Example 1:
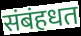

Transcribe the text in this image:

संबंहधत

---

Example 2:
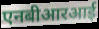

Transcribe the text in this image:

एनबीआरआई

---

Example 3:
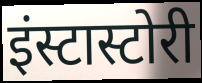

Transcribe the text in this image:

इंस्टास्टोरी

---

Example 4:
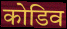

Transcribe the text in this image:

कोडिव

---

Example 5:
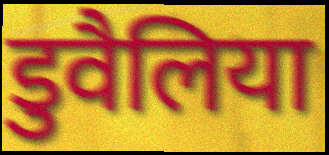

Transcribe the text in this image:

डुवैलिया